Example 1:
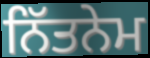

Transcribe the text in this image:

ਨਿੱਤਨੇਮ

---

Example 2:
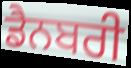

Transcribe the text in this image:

ਡੈਨਬਰੀ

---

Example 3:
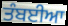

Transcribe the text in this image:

ਤੰਬਈਆ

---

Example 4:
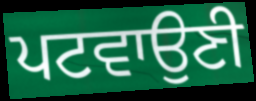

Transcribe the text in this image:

ਪਟਵਾਉਣੀ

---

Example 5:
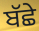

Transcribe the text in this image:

ਬੱਛੇ